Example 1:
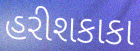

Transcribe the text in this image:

હરીશકાકા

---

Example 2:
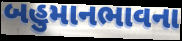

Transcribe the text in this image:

બહુમાનભાવના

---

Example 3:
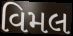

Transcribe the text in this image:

વિમલ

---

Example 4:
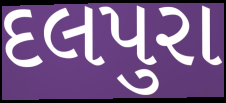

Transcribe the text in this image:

દલપુરા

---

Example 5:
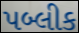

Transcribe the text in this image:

પબ્લીક